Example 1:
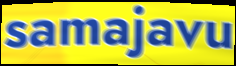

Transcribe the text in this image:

samajavu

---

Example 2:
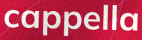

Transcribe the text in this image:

cappella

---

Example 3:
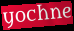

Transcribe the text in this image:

yochne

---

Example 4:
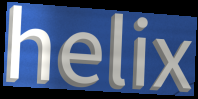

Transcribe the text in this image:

helix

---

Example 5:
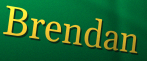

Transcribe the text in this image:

Brendan